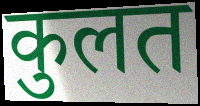
कुलत